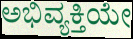
ಅಭಿವ್ಯಕ್ತಿಯೇ